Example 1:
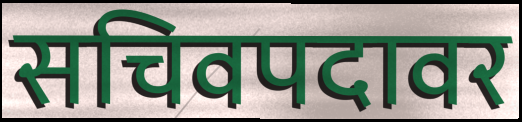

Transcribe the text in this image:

सचिवपदावर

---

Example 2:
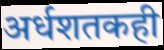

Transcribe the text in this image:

अर्धशतकही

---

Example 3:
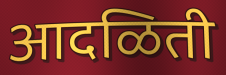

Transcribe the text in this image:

आदळिती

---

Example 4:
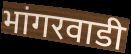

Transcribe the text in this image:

भांगरवाडी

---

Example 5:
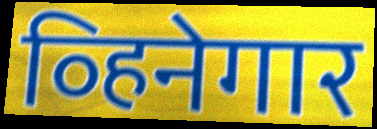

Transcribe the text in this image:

व्हिनेगार